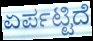
ಏರ್ಪಟ್ಟಿದೆ